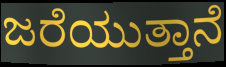
ಜರೆಯುತ್ತಾನೆ